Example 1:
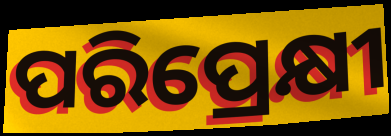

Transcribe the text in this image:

ପରିପ୍ରେକ୍ଷୀ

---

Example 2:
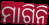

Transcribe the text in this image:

ମାଗିନି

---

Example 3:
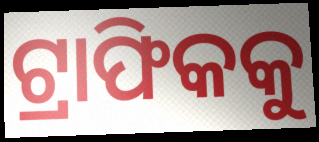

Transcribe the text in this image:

ଟ୍ରାଫିକକୁ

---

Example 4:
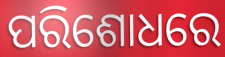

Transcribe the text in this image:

ପରିଶୋଧରେ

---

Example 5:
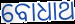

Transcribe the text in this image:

ବୋଧାଥ